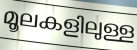
മൂലകളിലുള്ള